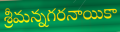
శ్రీమన్నగరనాయికా